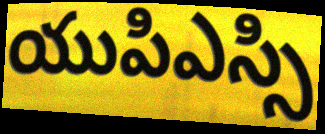
యుపిఎస్సి